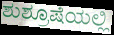
ಶುಶ್ರೂಷೆಯಲ್ಲಿ